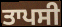
ਤਾਪਸੀ